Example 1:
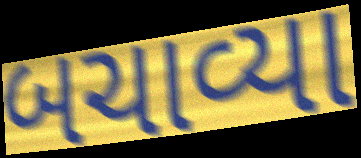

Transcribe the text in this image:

બચાવ્યા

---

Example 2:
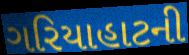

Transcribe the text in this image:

ગરિયાહાટની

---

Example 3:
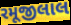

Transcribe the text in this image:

રમૂજીલાલ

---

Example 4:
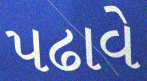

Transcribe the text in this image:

પઢાવે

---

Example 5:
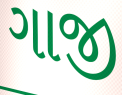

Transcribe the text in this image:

ગાજી